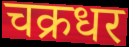
चक्रधर